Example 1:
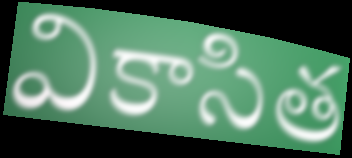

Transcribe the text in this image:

వికాసిత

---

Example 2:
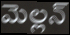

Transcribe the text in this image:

మెల్లన్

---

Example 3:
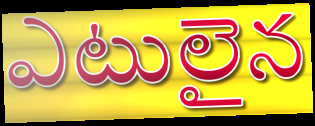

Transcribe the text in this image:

ఎటులైన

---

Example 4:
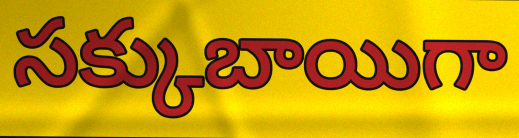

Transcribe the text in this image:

సక్కుబాయిగా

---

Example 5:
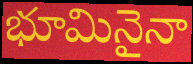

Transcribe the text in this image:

భూమినైనా